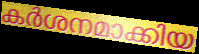
കർശനമാക്കിയ